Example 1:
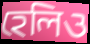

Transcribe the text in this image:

হেলিও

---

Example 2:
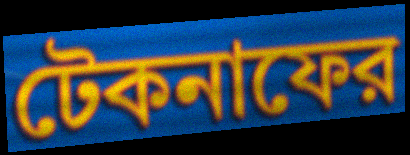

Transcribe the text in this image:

টেকনাফের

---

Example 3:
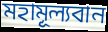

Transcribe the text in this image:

মহামূল্যবান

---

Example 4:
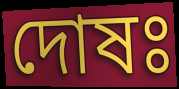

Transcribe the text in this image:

দোষঃ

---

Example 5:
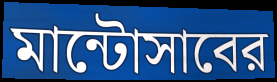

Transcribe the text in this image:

মান্টোসাবের